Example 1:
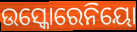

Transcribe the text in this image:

ଉସ୍କୋରେନିୟୋ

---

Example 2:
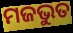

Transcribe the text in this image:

ମଜଭୁତ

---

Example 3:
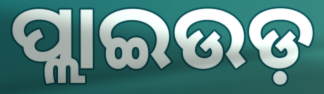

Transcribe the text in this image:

ପ୍ଲାଇଉଡ଼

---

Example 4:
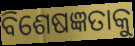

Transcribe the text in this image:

ବିଶେଷଜ୍ଞତାକୁ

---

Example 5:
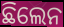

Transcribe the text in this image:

ଛିଲେନ